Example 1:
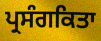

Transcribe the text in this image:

ਪ੍ਰਸੰਗਕਿਤਾ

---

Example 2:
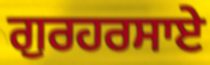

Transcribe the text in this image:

ਗੁਰਹਰਸਾਏ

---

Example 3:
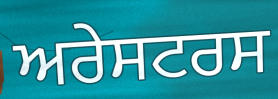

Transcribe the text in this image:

ਅਰੇਸਟਰਸ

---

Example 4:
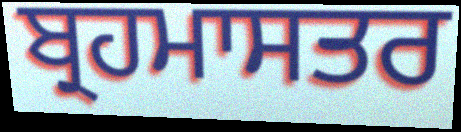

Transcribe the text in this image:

ਬ੍ਰਹਮਾਸਤਰ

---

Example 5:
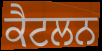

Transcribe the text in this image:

ਕੈਟਲਨ